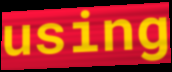
using